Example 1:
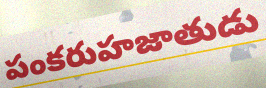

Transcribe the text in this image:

పంకరుహజాతుడు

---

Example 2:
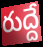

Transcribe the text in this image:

రుద్దే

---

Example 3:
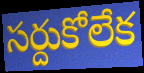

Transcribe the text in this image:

సర్దుకోలేక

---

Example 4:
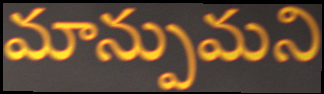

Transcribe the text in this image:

మాన్పుమని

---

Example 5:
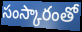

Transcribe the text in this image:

సంస్కారంతో